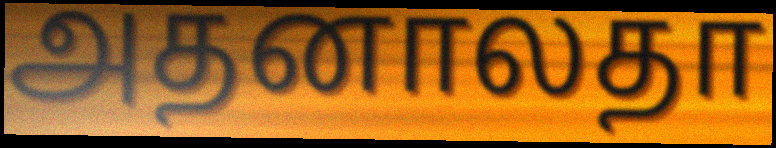
அதனாலதா